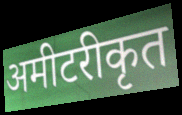
अमीटरीकृत